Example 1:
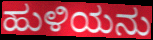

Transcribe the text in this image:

ಹುಳಿಯನು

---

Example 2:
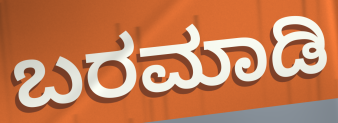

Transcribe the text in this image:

ಬರಮಾಡಿ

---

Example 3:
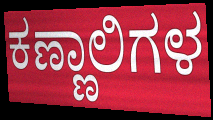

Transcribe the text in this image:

ಕಣ್ಣಾಲಿಗಳ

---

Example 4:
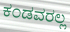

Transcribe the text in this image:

ಕಂಡವರಲ್ಲ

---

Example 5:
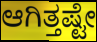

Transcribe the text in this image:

ಆಗಿತ್ತಷ್ಟೇ